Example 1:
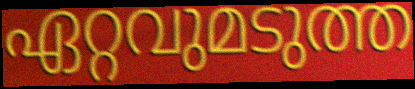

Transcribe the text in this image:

ഏറ്റവുമടുത്ത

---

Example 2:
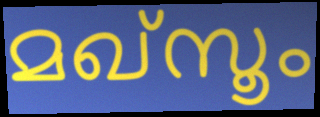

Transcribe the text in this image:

മഖ്സൂം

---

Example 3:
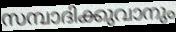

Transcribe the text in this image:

സമ്പാദിക്കുവാനും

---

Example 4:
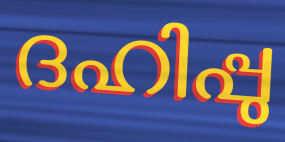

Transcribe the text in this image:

ദഹിപ്പു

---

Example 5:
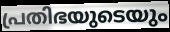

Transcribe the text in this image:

പ്രതിഭയുടെയും